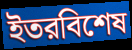
ইতরবিশেষ